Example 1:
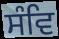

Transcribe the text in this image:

ਸੰਵਿ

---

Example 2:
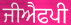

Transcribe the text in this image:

ਜੀਐਫਪੀ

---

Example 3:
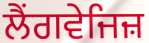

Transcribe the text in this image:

ਲੈਂਗਵੇਜਿਜ਼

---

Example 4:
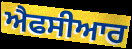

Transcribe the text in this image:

ਐਫਸੀਆਰ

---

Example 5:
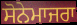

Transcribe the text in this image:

ਸੋਨੇਮਾਜਰਾ